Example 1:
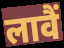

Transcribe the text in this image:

लावैं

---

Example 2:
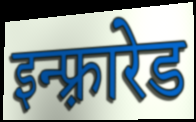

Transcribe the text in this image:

इन्फ़्रारेड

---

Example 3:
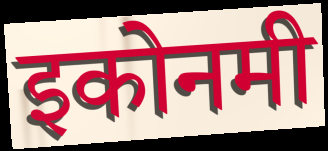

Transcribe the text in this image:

इकोनमी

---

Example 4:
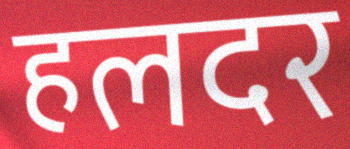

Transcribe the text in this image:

हलदर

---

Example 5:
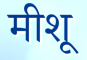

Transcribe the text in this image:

मीशू